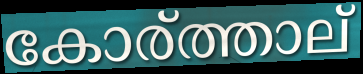
കോര്ത്താല്